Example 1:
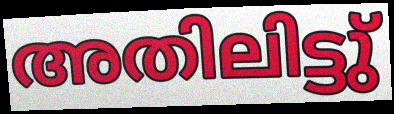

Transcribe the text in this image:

അതിലിട്ടു്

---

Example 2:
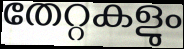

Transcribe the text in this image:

തേറ്റകളും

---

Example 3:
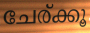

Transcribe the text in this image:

ചേര്ക്കൂ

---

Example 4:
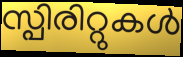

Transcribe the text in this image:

സ്പിരിറ്റുകൾ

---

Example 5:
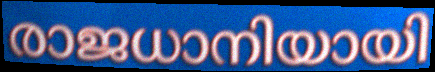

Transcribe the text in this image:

രാജധാനിയായി